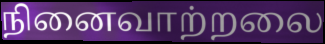
நினைவாற்றலை